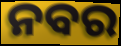
ନବର